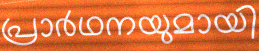
പ്രാർഥനയുമായി